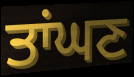
ਤਾਂਘਣ